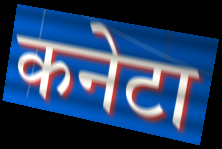
कनेटा